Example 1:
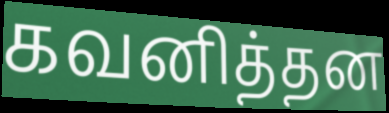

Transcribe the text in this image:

கவனித்தன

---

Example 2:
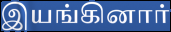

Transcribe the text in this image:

இயங்கினார்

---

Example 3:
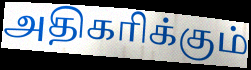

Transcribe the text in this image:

அதிகரிக்கும்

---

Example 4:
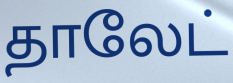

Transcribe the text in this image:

தாலேட்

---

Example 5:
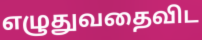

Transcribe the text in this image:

எழுதுவதைவிட